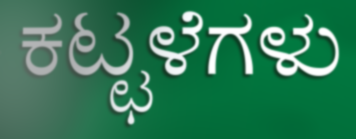
ಕಟ್ಟಳೆಗಳು